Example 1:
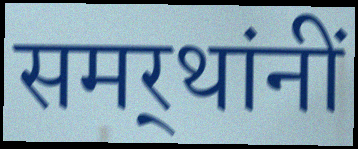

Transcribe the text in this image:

समर्थांनीं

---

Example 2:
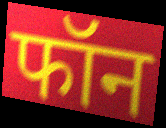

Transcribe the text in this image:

फॉन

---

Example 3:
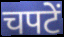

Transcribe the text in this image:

चपटें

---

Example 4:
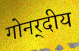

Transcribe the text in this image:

गोनर्दीय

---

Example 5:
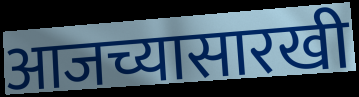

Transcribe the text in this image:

आजच्यासारखी